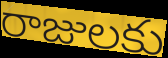
రాజులకు